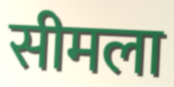
सीमला